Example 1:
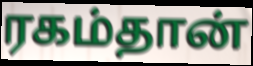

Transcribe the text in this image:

ரகம்தான்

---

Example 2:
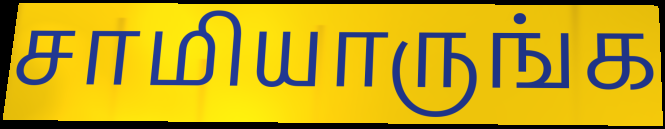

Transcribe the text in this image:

சாமியாருங்க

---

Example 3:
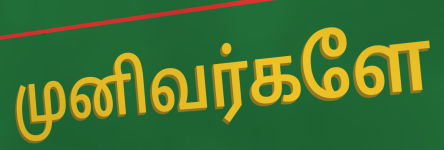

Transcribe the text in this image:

முனிவர்களே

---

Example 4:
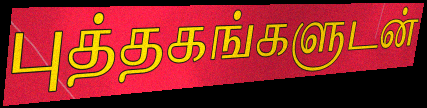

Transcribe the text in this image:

புத்தகங்களுடன்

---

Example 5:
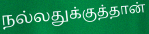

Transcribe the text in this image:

நல்லதுக்குத்தான்